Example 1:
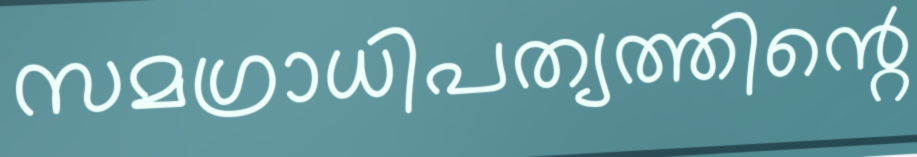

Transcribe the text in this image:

സമഗ്രാധിപത്യത്തിന്റെ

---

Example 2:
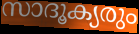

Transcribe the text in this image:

സാദൂക്യരും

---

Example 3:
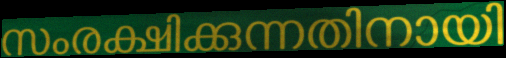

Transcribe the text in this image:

സംരക്ഷിക്കുന്നതിനായി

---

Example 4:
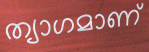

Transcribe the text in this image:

ത്യാഗമാണ്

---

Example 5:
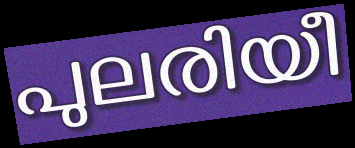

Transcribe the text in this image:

പുലരിയീ